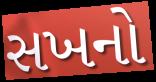
સખનો